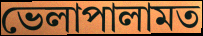
ভেলাপালামত